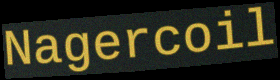
Nagercoil